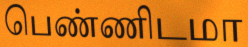
பெண்ணிடமா